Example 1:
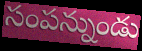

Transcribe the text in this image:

సంపన్నుండు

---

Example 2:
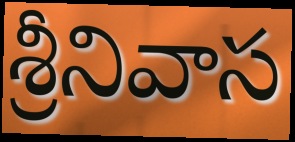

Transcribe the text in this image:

శ్రీనివాస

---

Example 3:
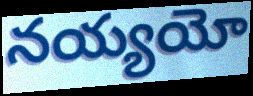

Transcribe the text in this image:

నయ్యయో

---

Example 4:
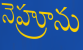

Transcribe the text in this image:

నెహ్రూను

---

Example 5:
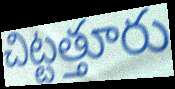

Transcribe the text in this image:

చిట్టత్తూరు